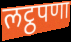
लट्ठपणा